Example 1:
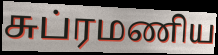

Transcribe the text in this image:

சுப்ரமணிய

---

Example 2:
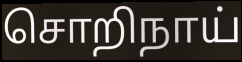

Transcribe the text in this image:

சொறிநாய்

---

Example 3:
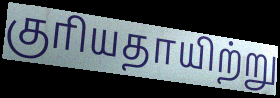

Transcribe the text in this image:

குரியதாயிற்று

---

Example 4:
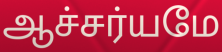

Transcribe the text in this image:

ஆச்சர்யமே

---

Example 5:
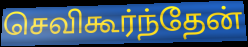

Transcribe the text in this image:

செவிகூர்ந்தேன்